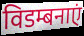
विडम्बनाएं